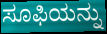
ಸೂಫಿಯನ್ನು